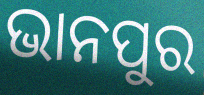
ଭାନପୁର